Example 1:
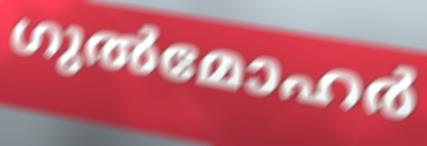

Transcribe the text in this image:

ഗുൽമോഹർ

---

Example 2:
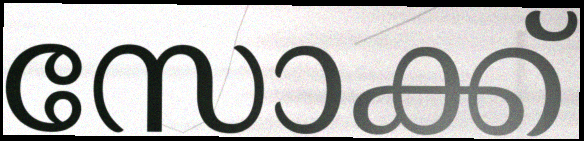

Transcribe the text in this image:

സോക്ക്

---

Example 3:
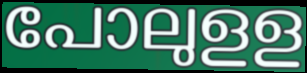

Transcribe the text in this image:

പോലുളള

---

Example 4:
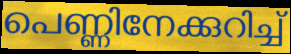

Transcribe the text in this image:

പെണ്ണിനേക്കുറിച്ച്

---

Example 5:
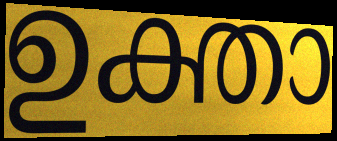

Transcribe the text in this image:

ഉക്താ